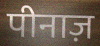
पीनाज़